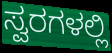
ಸ್ವರಗಳಲ್ಲಿ